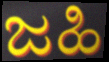
ಜಹಿ